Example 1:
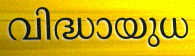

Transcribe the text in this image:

വിദ്ധായുധ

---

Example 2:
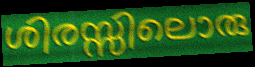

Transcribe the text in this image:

ശിരസ്സിലൊരു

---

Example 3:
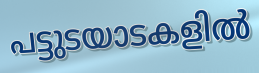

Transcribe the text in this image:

പട്ടുടയാടകളിൽ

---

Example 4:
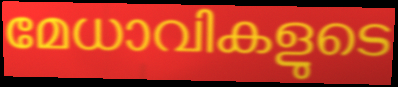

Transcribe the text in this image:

മേധാവികളുടെ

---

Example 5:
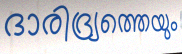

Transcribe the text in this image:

ദാരിദ്ര്യത്തെയും